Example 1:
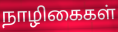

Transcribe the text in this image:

நாழிகைகள்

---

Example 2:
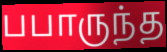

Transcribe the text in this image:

பபாருந்த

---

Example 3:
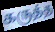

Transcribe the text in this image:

கருத்த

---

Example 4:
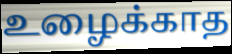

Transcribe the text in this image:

உழைக்காத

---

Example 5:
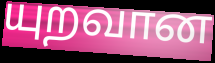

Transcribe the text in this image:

யுறவான